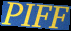
PIFF